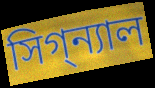
সিগ্‌ন্যাল